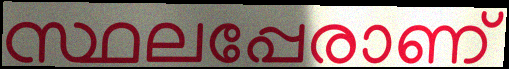
സ്ഥലപ്പേരാണ്